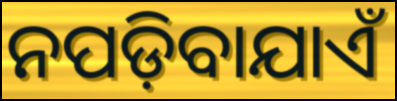
ନପଡ଼ିବାଯାଏଁ